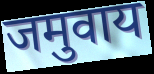
जमुवाय